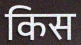
किस